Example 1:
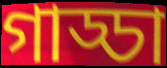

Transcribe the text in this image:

গাড্ডা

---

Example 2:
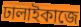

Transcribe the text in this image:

ঢালাইকাজে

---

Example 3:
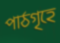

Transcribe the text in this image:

পাঠগৃহে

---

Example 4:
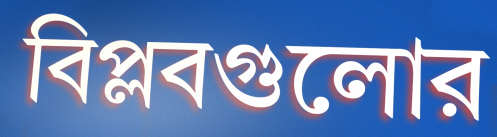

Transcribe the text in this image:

বিপ্লবগুলোর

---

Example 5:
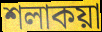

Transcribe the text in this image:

শলাকয়া